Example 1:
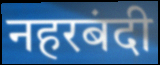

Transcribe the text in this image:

नहरबंदी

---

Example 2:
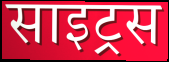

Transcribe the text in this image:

साइट्रस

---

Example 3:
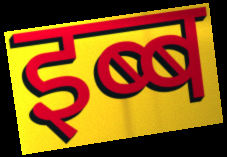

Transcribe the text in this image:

इब्ब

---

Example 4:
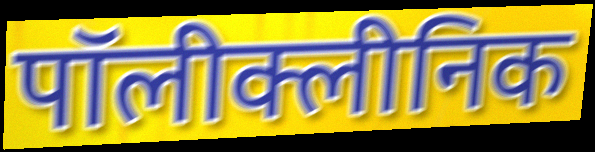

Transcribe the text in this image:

पॉलीक्लीनिक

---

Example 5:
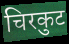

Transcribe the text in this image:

चिरकुट